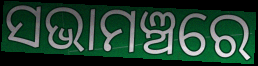
ସଭାମଞ୍ଚରେ